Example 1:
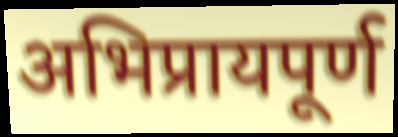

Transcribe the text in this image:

अभिप्रायपूर्ण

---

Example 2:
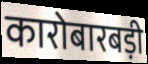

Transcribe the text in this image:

कारोबारबड़ी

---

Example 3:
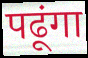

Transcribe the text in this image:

पढूंगा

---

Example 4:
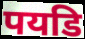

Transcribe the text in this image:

पयडि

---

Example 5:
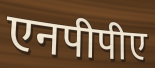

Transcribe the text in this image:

एनपीपीए